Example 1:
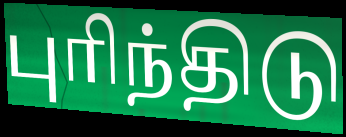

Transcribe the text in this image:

புரிந்திடு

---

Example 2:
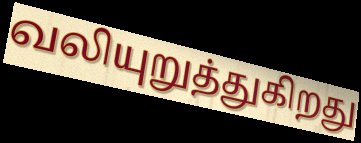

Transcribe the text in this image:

வலியுறுத்துகிறது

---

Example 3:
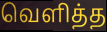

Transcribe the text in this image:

வெளித்த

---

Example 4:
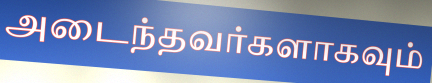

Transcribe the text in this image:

அடைந்தவர்களாகவும்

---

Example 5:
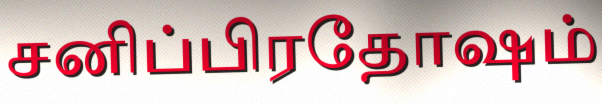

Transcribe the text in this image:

சனிப்பிரதோஷம்